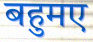
बहुमए